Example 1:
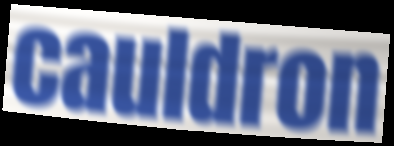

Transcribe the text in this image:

cauldron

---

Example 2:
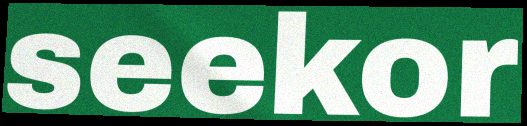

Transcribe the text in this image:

seekor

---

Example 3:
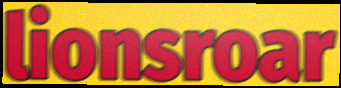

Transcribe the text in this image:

lionsroar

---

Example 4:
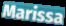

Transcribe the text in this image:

Marissa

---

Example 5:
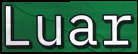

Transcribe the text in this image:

Luar